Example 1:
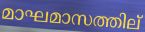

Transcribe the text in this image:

മാഘമാസത്തില്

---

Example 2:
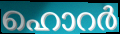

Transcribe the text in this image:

ഹൊറർ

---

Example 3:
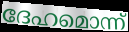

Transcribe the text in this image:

ദേഹമൊന്ന്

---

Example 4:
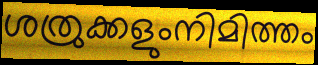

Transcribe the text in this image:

ശത്രുക്കളുംനിമിത്തം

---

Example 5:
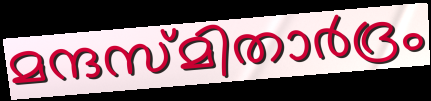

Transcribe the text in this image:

മന്ദസ്മിതാർദ്രം